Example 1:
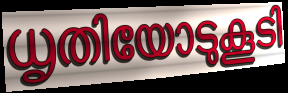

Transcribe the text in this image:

ധൃതിയോടുകൂടി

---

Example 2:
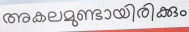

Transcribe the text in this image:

അകലമുണ്ടായിരിക്കും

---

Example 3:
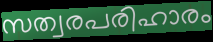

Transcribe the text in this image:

സത്വരപരിഹാരം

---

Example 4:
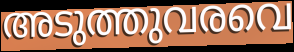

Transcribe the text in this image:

അടുത്തുവരവെ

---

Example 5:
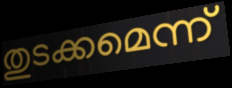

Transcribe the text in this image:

തുടക്കമെന്ന്